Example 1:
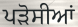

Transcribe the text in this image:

ਪੜੋਸੀਆਂ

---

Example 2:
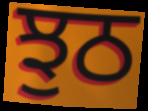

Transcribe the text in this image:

ਝੁਠ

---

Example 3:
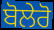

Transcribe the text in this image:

ਬੋਲੇਰੋ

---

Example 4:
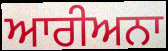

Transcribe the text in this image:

ਆਰੀਅਨਾ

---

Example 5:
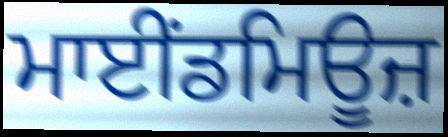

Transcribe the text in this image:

ਮਾਈਂਡਮਿਊਜ਼